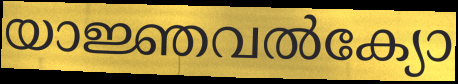
യാജ്ഞവൽക്യോ